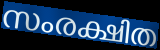
സംരക്ഷിത